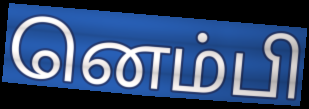
னெம்பி